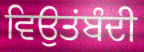
ਵਿਉਤਂਬੰਦੀ